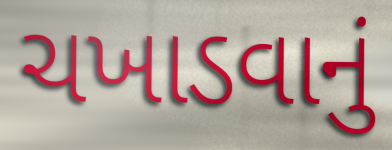
ચખાડવાનું